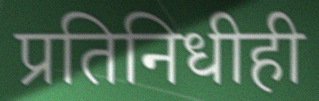
प्रतिनिधीही